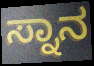
ಸ್ನಾನ